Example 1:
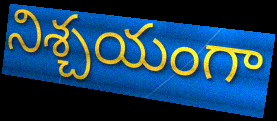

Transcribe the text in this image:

నిశ్చయంగా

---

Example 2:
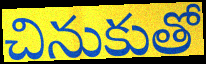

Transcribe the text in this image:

చినుకుతో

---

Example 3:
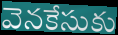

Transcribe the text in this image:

వెనకేసుకు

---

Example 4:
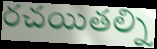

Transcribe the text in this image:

రచయితల్ని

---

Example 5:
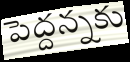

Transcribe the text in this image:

పెద్దన్నకు